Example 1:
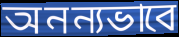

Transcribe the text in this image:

অনন্যভাবে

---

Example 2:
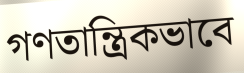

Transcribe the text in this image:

গণতান্ত্রিকভাবে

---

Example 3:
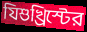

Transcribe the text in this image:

যিশুখ্রিস্টের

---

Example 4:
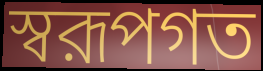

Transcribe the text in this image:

স্বরূপগত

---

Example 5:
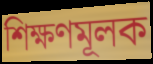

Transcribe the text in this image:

শিক্ষণমূলক